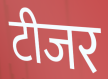
टीजर